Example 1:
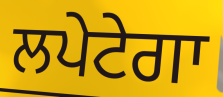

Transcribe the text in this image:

ਲਪੇਟੇਗਾ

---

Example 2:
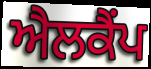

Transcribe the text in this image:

ਐਲਕੈਂਪ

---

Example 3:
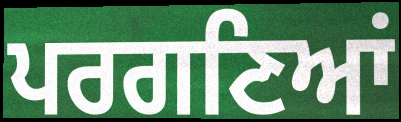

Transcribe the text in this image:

ਪਰਗਣਿਆਂ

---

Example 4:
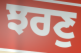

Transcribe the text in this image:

ਝਰਣੁ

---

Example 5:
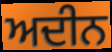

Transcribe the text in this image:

ਅਦੀਨ